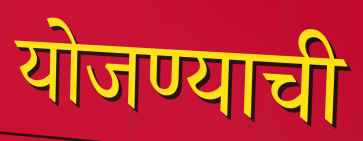
योजण्याची